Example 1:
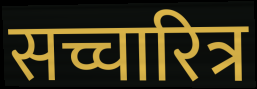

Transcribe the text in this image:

सच्चारित्र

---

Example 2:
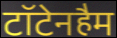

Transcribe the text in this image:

टॉटेनहैम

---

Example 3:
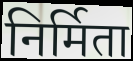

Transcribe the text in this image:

निर्मिता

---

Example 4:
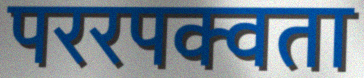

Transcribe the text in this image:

पररपक्वता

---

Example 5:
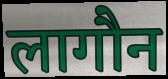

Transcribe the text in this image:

लागौन